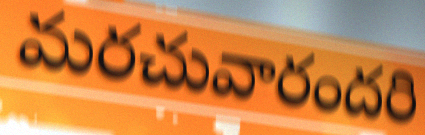
మరచువారందరి